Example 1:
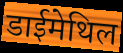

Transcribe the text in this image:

डाईमेथिल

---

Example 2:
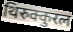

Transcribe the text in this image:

थिरुक्कुरल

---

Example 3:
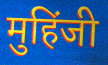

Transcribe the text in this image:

मुहिंजी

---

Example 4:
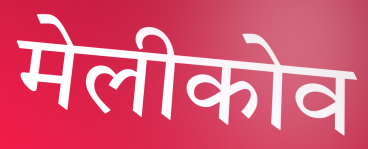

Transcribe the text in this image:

मेलीकोव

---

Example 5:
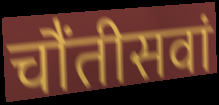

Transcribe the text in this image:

चौंतीसवां